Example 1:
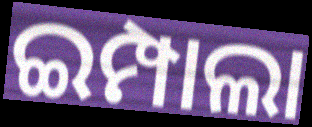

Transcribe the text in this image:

ଇମ୍ପାଲା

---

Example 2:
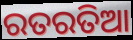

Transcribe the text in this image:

ରତରତିଆ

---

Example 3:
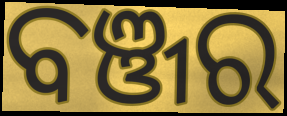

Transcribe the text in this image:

ବଞ୍ଜର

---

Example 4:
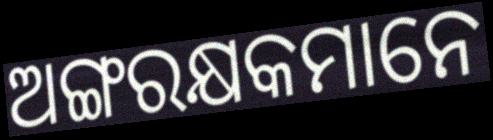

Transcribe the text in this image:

ଅଙ୍ଗରକ୍ଷକମାନେ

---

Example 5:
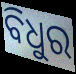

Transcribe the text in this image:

ବିଧୁର